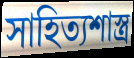
সাহিত্যশাস্ত্র